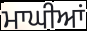
ਮਾਘੀਆਂ